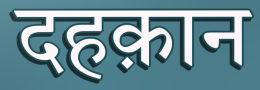
दहक़ान